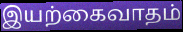
இயற்கைவாதம்